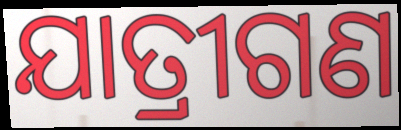
ଯାତ୍ରୀଗଣ